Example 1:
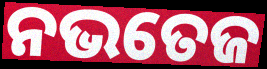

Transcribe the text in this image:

ନଭତେଜ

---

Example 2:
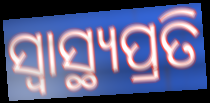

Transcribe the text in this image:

ସ୍ବାସ୍ଥ୍ୟପ୍ରତି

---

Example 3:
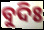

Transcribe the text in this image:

ବୁଦିଃ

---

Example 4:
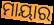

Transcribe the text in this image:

ମାୟାର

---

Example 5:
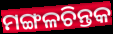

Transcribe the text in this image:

ମଙ୍ଗଳଚିନ୍ତକ